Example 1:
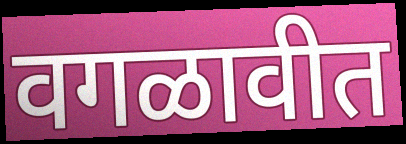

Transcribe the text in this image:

वगळावीत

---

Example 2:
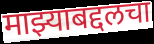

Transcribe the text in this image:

माझ्याबद्दलचा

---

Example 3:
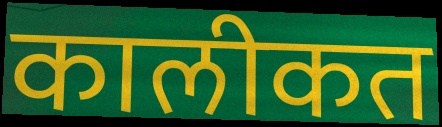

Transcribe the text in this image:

कालीकत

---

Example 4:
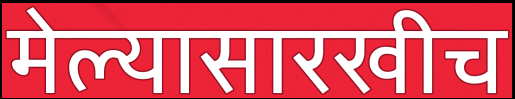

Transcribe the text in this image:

मेल्यासारखीच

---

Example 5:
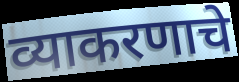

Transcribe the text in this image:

व्याकरणाचे